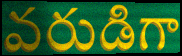
వరుడిగా